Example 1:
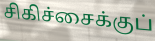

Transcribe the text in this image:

சிகிச்சைக்குப்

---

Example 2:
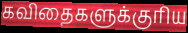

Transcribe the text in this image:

கவிதைகளுக்குரிய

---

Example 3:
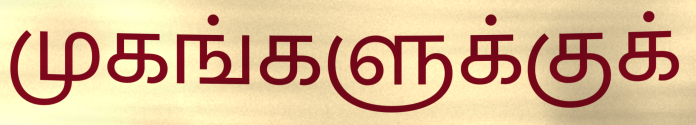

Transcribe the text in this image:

முகங்களுக்குக்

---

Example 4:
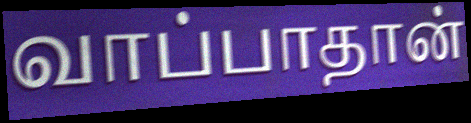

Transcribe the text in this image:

வாப்பாதான்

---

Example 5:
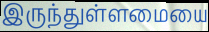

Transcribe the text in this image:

இருந்துள்ளமையை